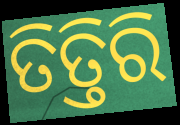
ତିତ୍ତିରି